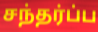
சந்தர்ப்ப